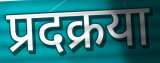
प्रदक्रया